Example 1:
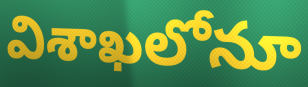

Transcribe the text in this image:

విశాఖలోనూ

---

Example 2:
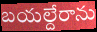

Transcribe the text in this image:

బయల్దేరాను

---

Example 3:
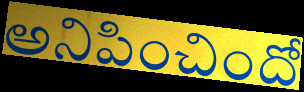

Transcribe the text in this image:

అనిపించిందో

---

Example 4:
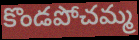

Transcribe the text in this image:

కొండపోచమ్మ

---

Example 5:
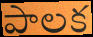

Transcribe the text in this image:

పాలక